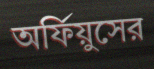
অর্ফিয়ুসের